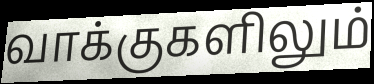
வாக்குகளிலும்